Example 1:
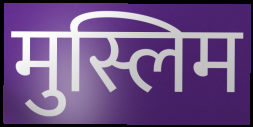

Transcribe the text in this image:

मुस्लिम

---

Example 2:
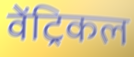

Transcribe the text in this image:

वेंट्रिकल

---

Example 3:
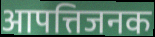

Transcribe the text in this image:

आपत्तिजनक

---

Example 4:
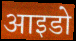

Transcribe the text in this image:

आइडो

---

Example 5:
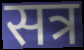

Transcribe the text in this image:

सत्र